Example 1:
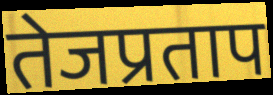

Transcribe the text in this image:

तेजप्रताप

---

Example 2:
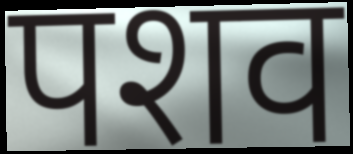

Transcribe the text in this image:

पशव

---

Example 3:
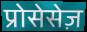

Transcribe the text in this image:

प्रोसेसेज़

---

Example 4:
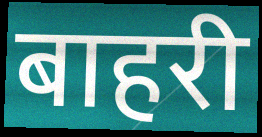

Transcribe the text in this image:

बाहरी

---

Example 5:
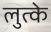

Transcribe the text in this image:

लुत्के